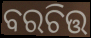
ବରଚିତ୍ତ